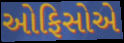
ઓફિસોએ